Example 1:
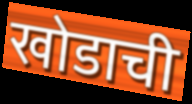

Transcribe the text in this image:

खोडाची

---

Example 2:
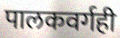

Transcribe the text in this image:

पालकवर्गही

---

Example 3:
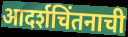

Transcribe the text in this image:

आदर्शचिंतनाची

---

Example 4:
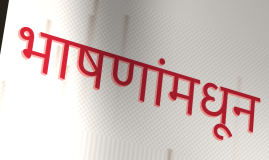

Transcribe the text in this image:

भाषणांमधून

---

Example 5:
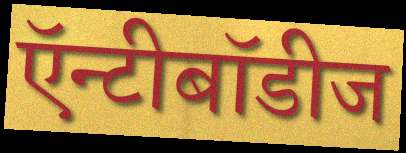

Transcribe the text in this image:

ऍन्टीबॉडीज